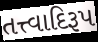
તત્ત્વાદિરૂપ